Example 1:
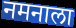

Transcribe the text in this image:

नमनाला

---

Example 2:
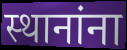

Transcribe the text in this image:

स्थानांना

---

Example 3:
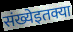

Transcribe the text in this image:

संख्येइतक्या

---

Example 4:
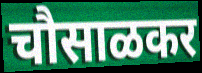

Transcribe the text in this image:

चौसाळकर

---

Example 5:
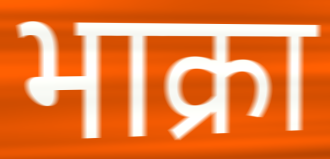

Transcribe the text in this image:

भाक्रा